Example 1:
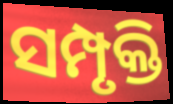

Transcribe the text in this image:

ସମ୍ପୃକ୍ତି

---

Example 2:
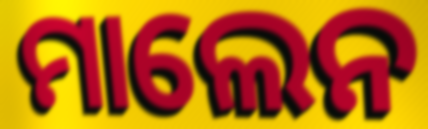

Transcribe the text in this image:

ମାଲେନ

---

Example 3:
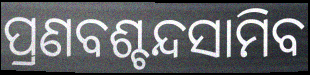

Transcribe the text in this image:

ପ୍ରଣବଶ୍ଚନ୍ଦସାମିବ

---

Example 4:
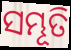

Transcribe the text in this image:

ସମ୍ଭୂତି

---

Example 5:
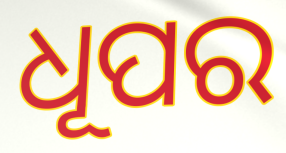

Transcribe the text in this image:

ଧୂପର